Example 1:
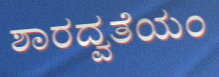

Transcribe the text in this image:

ಶಾರದ್ವತೆಯಂ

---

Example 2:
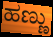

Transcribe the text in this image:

ಹಣ್ಣು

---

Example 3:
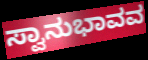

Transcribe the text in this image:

ಸ್ವಾನುಭಾವವ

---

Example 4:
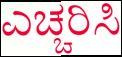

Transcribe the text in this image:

ಎಚ್ಚರಿಸಿ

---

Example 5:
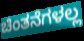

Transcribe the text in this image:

ಚಿಂತನೆಗಳಲ್ಲ